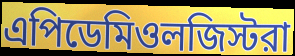
এপিডেমিওলজিস্টরা